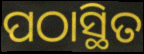
ପଠାସ୍ଥିତ